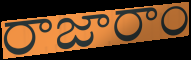
రాజారాం